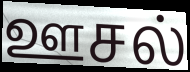
ஊசல்